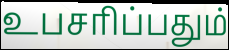
உபசரிப்பதும்